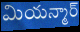
మియన్మార్